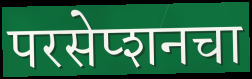
परसेप्शनचा